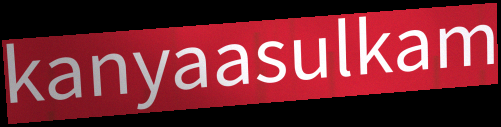
kanyaasulkam